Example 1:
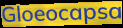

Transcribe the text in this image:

Gloeocapsa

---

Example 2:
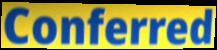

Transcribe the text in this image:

Conferred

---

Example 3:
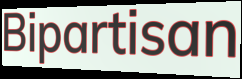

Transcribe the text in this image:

Bipartisan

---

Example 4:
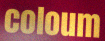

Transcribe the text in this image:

coloum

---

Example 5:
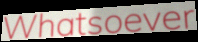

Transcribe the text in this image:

Whatsoever